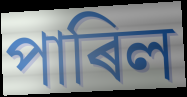
পাৰিল